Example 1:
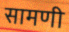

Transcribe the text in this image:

सामणी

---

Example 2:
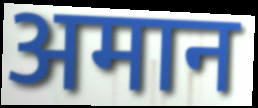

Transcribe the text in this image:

अमान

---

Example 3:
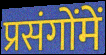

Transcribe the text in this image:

प्रसंगोंमें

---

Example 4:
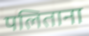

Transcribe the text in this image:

पलिताना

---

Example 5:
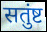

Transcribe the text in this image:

सतुंष्ट